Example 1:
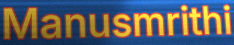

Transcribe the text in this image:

Manusmrithi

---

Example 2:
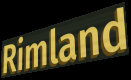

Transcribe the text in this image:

Rimland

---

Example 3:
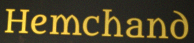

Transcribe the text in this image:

Hemchand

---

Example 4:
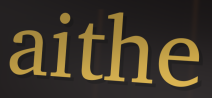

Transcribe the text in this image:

aithe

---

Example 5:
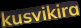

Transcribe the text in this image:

kusvikira